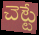
చెట్టే